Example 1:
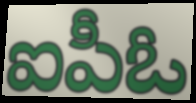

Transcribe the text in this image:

ఐపీఓ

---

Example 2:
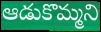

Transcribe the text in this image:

ఆడుకొమ్మని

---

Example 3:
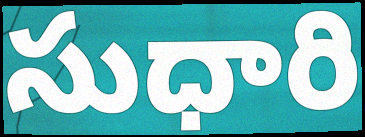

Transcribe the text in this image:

సుధారి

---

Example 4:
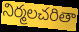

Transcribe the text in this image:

నిర్మలచరితా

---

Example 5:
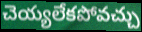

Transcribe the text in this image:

చెయ్యలేకపోవచ్చు